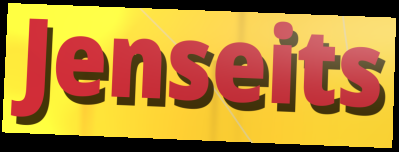
Jenseits